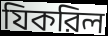
যিকরিল